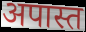
अपास्त